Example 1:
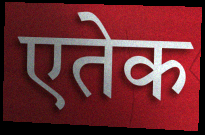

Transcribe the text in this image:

एतेक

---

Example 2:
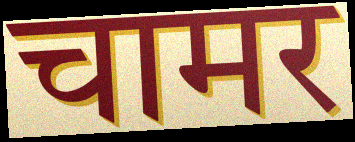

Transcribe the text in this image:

चामर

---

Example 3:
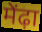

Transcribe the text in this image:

मेंढ़ा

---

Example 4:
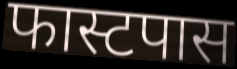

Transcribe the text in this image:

फास्टपास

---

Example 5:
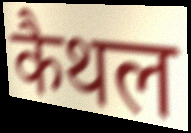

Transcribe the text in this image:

कैथल